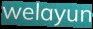
welayun